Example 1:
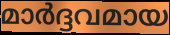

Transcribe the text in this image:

മാർദ്ദവമായ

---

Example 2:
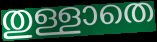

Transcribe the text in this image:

തുള്ളാതെ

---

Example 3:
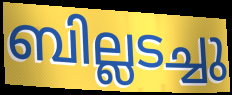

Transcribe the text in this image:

ബില്ലടച്ചു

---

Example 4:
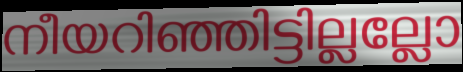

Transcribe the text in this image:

നീയറിഞ്ഞിട്ടില്ലല്ലോ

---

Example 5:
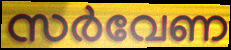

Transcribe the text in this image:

സർവേണ